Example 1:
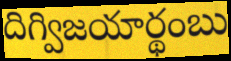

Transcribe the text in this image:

దిగ్విజయార్థంబు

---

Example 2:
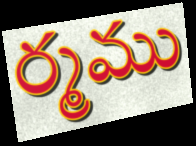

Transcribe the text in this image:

ర్మము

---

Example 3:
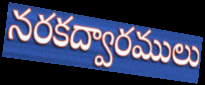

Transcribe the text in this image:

నరకద్వారములు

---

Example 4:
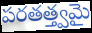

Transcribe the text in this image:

పరతత్త్వమై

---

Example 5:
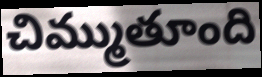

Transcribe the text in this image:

చిమ్ముతూంది